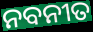
ନବନୀତ